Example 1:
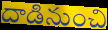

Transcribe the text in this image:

దాడినుంచి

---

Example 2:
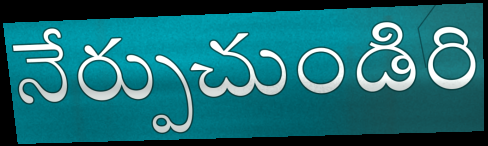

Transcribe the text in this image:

నేర్పుచుండిరి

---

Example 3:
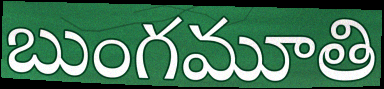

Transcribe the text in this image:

బుంగమూతి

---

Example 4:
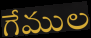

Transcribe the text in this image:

గేముల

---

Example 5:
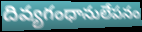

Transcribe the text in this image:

దివ్యగంధానులేపనం